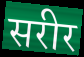
सरीर